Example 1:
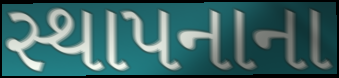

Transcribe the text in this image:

સ્થાપનાના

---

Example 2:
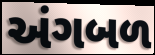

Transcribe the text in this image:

અંગબળ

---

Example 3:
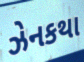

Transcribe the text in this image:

ઝેનકથા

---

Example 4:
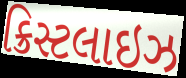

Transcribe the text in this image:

ક્રિસ્ટલાઇઝ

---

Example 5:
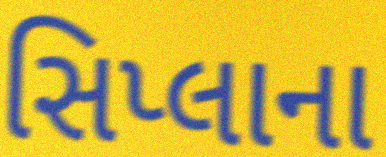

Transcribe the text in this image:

સિપ્લાના